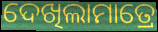
ଦେଖିଲାମାତ୍ରେ